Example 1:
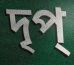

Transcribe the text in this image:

দৃপ্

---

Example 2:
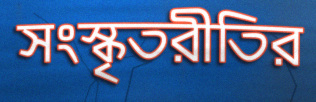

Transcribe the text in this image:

সংস্কৃতরীতির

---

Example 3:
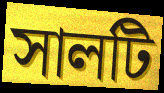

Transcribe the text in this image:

সালটি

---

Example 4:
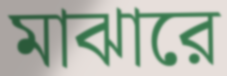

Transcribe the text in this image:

মাঝারে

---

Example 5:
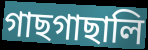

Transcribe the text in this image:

গাছগাছালি